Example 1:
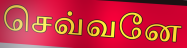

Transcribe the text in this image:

செவ்வனே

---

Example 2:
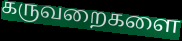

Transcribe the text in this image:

கருவறைகளை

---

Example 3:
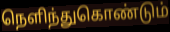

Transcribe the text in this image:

நெளிந்துகொண்டும்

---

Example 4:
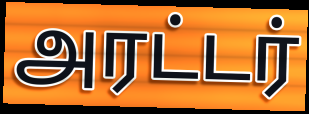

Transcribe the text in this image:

அரட்டர்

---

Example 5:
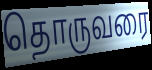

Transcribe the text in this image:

தொருவரை